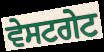
ਵੇਸਟਗੇਟ